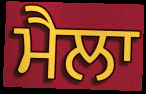
ਮੈਲਾ